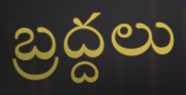
బ్రద్దలు